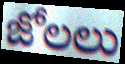
జోలలు